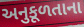
અનુકૂળતાના